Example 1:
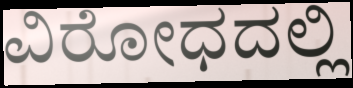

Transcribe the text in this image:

ವಿರೋಧದಲ್ಲಿ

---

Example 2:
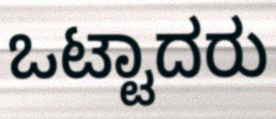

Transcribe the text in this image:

ಒಟ್ಟಾದರು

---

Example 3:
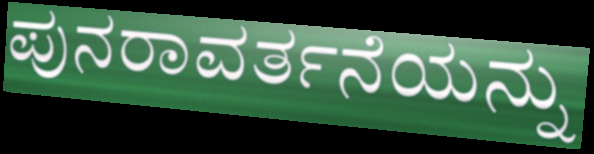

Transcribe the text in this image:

ಪುನರಾವರ್ತನೆಯನ್ನು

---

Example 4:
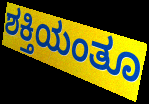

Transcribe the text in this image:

ಶಕ್ತಿಯಂತೂ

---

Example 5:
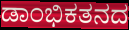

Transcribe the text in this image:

ಡಾಂಭಿಕತನದ